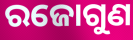
ରଜୋଗୁଣ